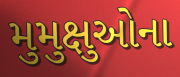
મુમુક્ષુઓના